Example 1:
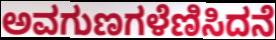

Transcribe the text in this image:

ಅವಗುಣಗಳೆಣಿಸಿದನೆ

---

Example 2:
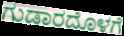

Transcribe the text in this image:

ಗುಡಾರದೊಳಗೆ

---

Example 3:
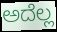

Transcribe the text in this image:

ಅದೆಲ್ಲ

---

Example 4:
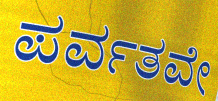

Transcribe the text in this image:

ಪರ್ವತವೇ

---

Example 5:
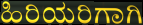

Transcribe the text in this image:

ಹಿರಿಯರಿಗಾಗಿ